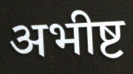
अभीष्ट